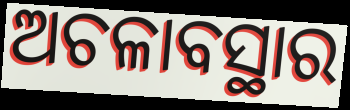
ଅଚଳାବସ୍ଥାର